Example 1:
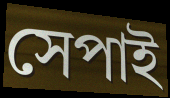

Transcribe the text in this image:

সেপাই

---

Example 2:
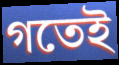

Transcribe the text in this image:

গতেই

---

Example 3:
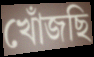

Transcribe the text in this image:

খোঁজছি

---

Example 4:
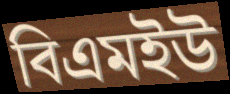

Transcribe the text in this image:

বিএমইউ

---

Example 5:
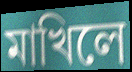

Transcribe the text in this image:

মাখিলে